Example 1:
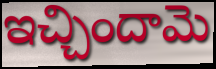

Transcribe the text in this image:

ఇచ్చిందామె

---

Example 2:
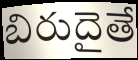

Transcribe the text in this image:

బిరుదైతే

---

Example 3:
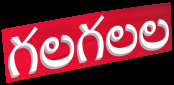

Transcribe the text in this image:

గలగలల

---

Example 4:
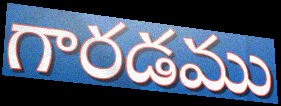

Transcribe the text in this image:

గారడము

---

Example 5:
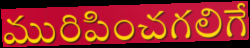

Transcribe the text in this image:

మురిపించగలిగే